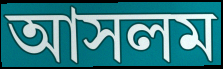
আসলম